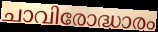
ചാവിരോദ്ധാരം